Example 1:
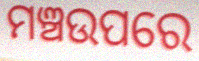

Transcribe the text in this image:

ମଞ୍ଚଉପରେ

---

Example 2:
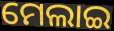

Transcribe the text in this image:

ମେଲାଇ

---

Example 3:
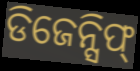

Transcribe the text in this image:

ଡିଜେନ୍ସିଫ୍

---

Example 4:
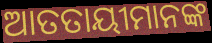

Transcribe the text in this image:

ଆତତାୟୀମାନଙ୍କ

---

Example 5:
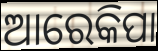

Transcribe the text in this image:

ଆରେକିପା